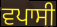
ਵਪਾਸੀ